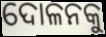
ଦୋଳନକୁ